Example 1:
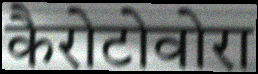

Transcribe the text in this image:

कैरोटोवोरा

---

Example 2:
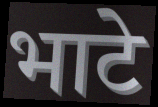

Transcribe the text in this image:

भाटे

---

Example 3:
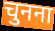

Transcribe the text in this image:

चुनना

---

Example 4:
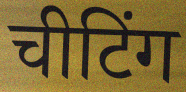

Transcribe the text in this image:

चीटिंग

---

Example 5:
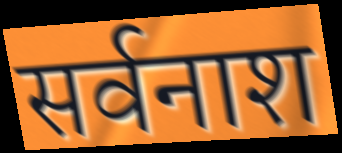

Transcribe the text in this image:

सर्वनाश